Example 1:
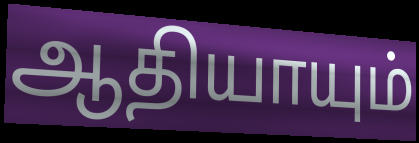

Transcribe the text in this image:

ஆதியாயும்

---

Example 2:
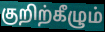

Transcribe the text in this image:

குறிற்கீழும்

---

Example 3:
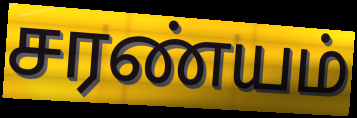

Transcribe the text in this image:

சரண்யம்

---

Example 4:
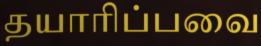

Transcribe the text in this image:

தயாரிப்பவை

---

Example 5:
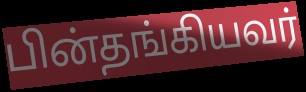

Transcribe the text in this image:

பின்தங்கியவர்